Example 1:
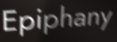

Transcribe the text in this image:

Epiphany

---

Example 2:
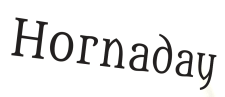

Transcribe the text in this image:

Hornaday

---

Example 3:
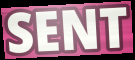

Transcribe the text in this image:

SENT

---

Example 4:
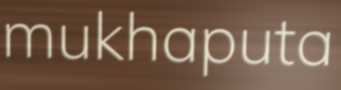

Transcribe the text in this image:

mukhaputa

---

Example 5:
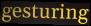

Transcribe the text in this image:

gesturing